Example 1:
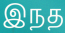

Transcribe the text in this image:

இநத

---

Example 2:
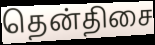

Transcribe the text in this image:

தென்திசை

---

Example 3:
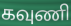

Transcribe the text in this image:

கவுணி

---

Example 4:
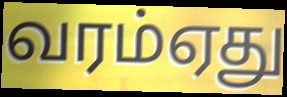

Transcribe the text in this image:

வரம்ஏது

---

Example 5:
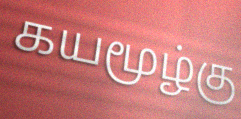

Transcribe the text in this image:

கயமூழ்கு